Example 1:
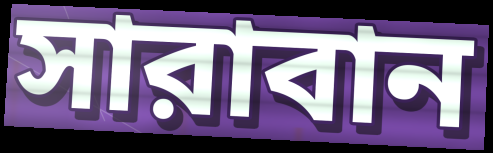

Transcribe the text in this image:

সারাবান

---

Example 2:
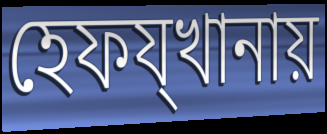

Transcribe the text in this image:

হেফয্খানায়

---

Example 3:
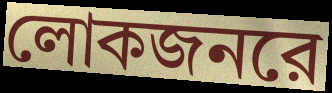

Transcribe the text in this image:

লোকজনরে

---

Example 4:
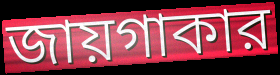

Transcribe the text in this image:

জায়গাকার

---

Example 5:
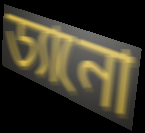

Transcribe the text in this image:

ড্যানো